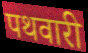
पथवारी